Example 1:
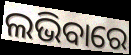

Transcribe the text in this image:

ଲଭିବାରେ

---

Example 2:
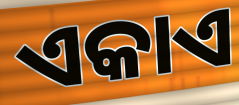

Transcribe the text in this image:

ଏକାଏ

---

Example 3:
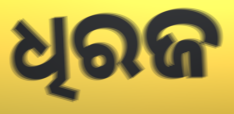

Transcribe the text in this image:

ଧିରଜ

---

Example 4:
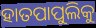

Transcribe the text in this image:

ହାତପାପୁଲିକୁ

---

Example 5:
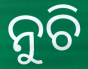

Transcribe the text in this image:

ନୁଚି